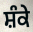
ਸ਼ੰਕੇ